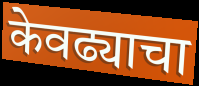
केवढ्याचा